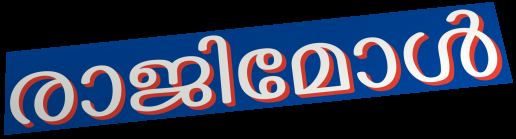
രാജിമോൾ